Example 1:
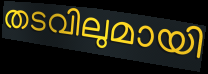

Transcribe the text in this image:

തടവിലുമായി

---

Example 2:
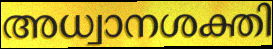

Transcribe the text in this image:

അധ്വാനശക്തി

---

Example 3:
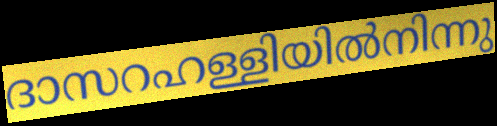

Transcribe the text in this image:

ദാസറഹള്ളിയിൽനിന്നു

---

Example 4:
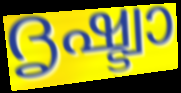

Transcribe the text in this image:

ദൃഷ്ട്വാ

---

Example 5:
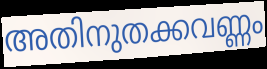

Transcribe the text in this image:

അതിനുതക്കവണ്ണം